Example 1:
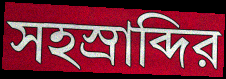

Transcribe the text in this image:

সহস্রাব্দির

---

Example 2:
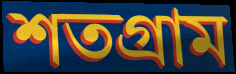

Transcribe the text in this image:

শতগ্রাম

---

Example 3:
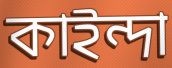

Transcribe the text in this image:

কাইন্দা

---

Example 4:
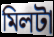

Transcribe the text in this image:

মিলটা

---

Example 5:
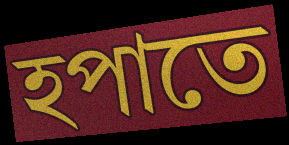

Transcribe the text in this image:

হপাতে